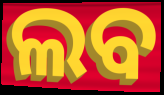
ଲବ